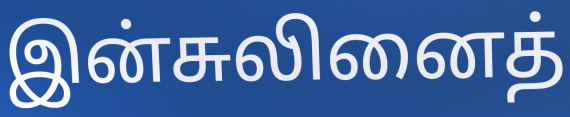
இன்சுலினைத்